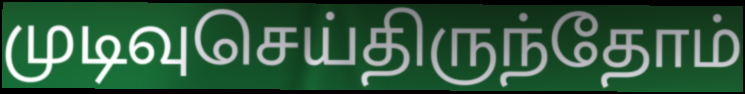
முடிவுசெய்திருந்தோம்